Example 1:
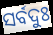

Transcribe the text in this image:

ସର୍ବଦୁଃ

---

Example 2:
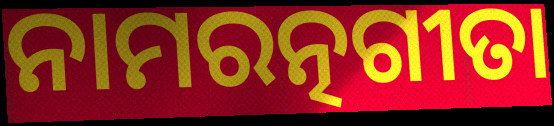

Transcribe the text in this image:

ନାମରତ୍ନଗୀତା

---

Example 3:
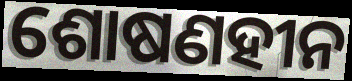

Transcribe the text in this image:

ଶୋଷଣହୀନ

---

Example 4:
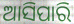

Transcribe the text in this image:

ଆସିପାରି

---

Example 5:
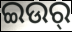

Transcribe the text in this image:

ଇଉର୍